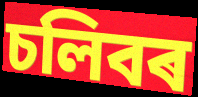
চলিবৰ